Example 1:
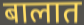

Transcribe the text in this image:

बालात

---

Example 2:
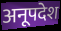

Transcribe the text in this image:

अनूपदेश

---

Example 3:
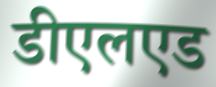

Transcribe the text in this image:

डीएलएड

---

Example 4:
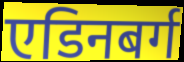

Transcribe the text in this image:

एडिनबर्ग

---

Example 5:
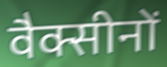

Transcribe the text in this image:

वैक्सीनों